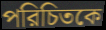
পরিচিতকে